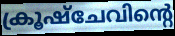
ക്രൂഷ്ചേവിന്റെ